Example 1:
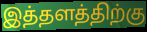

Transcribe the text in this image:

இத்தளத்திற்கு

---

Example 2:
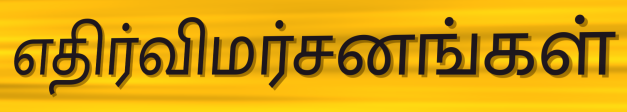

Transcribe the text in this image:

எதிர்விமர்சனங்கள்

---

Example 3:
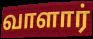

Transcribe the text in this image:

வாளார்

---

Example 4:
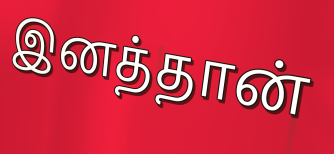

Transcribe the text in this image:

இனத்தான்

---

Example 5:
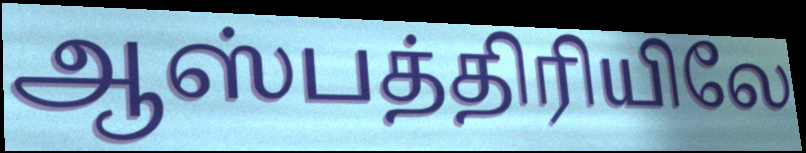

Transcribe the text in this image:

ஆஸ்பத்திரியிலே